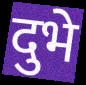
दुभे